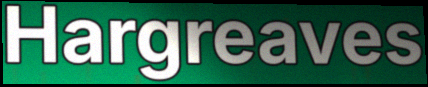
Hargreaves